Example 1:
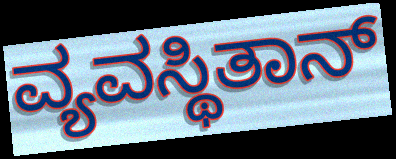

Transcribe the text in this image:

ವ್ಯವಸ್ಥಿತಾನ್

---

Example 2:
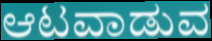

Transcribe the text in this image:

ಆಟವಾಡುವ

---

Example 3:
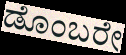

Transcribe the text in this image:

ಡೊಂಬರೇ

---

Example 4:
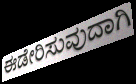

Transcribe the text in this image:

ಈಡೇರಿಸುವುದಾಗಿ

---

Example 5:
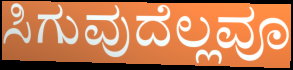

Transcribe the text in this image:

ಸಿಗುವುದೆಲ್ಲವೂ